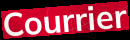
Courrier